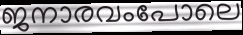
ജനാരവംപോലെ